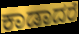
ಕಾಡಾದರೆ